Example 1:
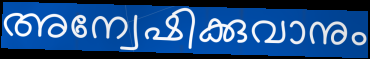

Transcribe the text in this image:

അന്വേഷിക്കുവാനും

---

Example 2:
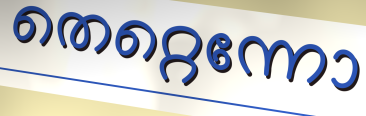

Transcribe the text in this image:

തെറ്റെന്നോ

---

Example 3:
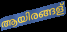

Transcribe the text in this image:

ആയിരങ്ങള്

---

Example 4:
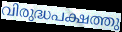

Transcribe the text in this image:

വിരുദ്ധപക്ഷത്തു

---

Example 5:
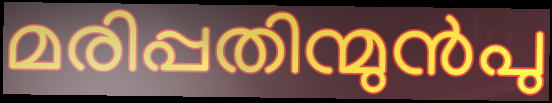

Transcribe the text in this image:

മരിപ്പതിന്മുൻപു